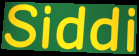
Siddi